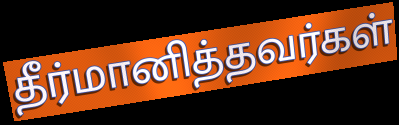
தீர்மானித்தவர்கள்